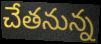
చేతనున్న